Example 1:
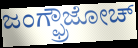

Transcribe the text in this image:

ಜಂಗ್ಫ್ರೌಜೋಚ್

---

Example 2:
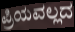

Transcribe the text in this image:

ಪ್ರಿಯವಲ್ಲದ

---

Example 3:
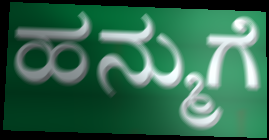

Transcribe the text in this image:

ಹನ್ಮುಗೆ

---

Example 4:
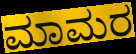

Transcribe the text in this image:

ಮಾಮರ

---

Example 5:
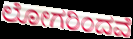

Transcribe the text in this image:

ಲೋಗರಿಂದವೆ